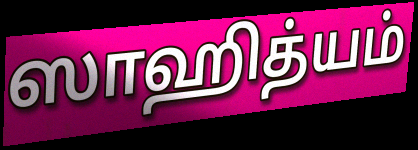
ஸாஹித்யம்